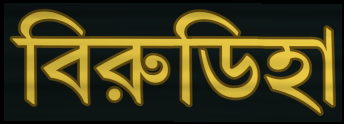
বিরুডিহা